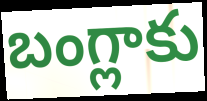
బంగ్లాకు